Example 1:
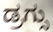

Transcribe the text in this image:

ಡ್ರಗ್ಸು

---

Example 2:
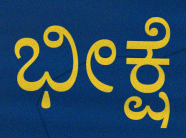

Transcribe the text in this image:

ಭೀಕ್ಷೆ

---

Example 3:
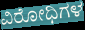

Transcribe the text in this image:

ವಿರೋಧಿಗಳ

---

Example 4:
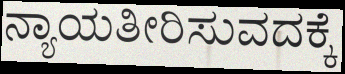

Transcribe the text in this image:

ನ್ಯಾಯತೀರಿಸುವದಕ್ಕೆ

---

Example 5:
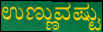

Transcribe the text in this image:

ಉಣ್ಣುವಷ್ಟು